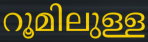
റൂമിലുള്ള